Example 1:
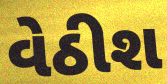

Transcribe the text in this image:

વેઠીશ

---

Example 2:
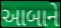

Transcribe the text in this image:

આબાને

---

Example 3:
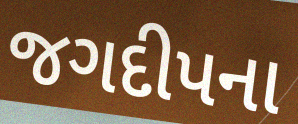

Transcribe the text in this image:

જગદીપના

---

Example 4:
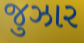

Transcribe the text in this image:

જુઝાર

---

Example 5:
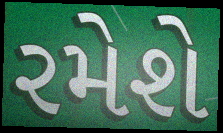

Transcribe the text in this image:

રમેશે